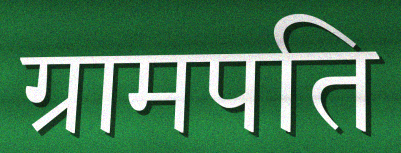
ग्रामपति